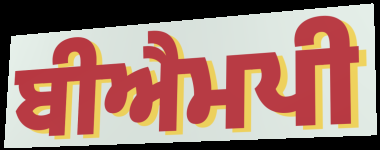
ਬੀਐਮਪੀ